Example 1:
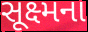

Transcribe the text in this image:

સૂક્ષ્મના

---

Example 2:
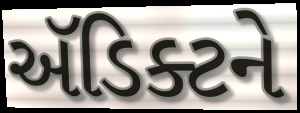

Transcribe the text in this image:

ઍડિક્ટને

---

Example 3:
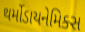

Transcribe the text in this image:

થર્મોડાયનેમિક્સ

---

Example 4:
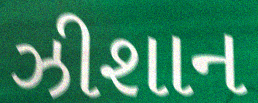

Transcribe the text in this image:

ઝીશાન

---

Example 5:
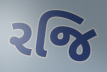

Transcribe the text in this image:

રજિ